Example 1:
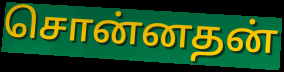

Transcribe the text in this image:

சொன்னதன்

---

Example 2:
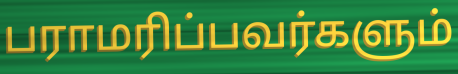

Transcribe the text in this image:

பராமரிப்பவர்களும்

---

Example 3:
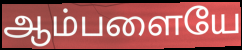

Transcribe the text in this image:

ஆம்பளையே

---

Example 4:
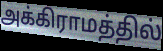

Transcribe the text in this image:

அக்கிராமத்தில்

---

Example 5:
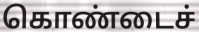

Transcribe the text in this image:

கொண்டைச்